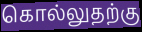
கொல்லுதற்கு